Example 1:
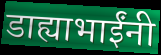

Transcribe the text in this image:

डाह्याभाईंनी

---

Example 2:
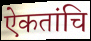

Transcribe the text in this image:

ऐकतांचि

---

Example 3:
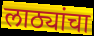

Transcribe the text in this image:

लाठ्यांचा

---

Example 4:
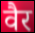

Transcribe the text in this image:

वैर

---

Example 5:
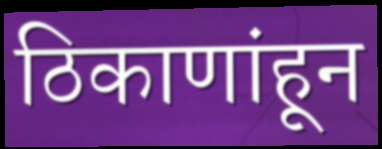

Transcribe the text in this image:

ठिकाणांहून